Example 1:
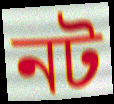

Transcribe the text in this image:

নট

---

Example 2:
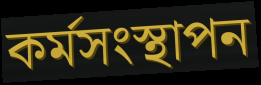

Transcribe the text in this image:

কৰ্মসংস্থাপন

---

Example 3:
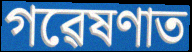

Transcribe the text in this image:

গৱেষণাত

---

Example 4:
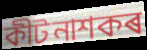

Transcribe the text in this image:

কীটনাশকৰ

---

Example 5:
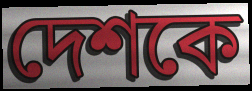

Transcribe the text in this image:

দেশকে